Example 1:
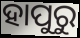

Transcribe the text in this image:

ହାପୁରୁ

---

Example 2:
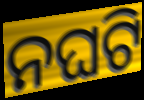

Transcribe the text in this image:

ନଘଟି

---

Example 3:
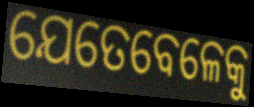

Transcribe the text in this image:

ଯେତେବେଳେକୁ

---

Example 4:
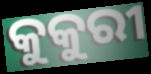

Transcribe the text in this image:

କୁକୁରୀ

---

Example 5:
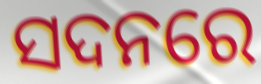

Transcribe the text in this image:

ସଦନରେ